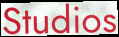
Studios